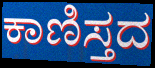
ಕಾಣಿಸ್ತದ